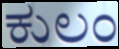
ಕುಲಂ